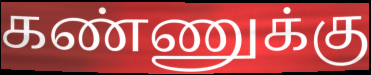
கண்ணுக்கு